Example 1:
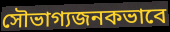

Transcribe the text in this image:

সৌভাগ্যজনকভাবে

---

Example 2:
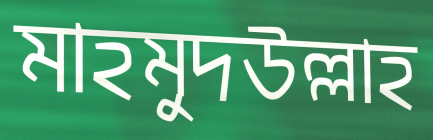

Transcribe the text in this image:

মাহমুদউল্লাহ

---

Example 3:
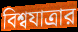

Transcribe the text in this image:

বিশ্বযাত্রার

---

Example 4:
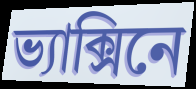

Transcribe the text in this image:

ভ্যাক্সিনে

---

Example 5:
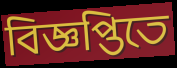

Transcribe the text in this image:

বিজ্ঞপ্তিতে